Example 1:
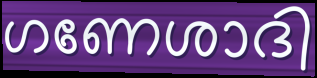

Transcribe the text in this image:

ഗണേശാദി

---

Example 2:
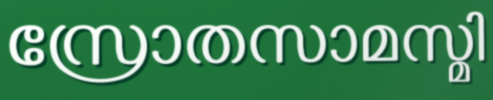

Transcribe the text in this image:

സ്രോതസാമസ്മി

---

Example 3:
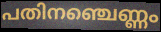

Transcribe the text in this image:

പതിനഞ്ചെണ്ണം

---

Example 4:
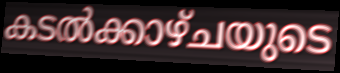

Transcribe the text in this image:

കടൽക്കാഴ്ചയുടെ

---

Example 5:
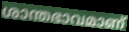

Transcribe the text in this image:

ശാന്തഭാവമാണ്